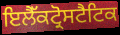
ਇਲੈੱਕਟ੍ਰੋਸਟੈਟਿਕ